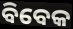
ବିବେକ